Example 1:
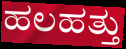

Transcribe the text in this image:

ಹಲಹತ್ತು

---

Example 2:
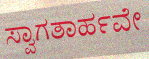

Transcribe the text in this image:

ಸ್ವಾಗತಾರ್ಹವೇ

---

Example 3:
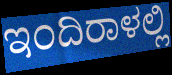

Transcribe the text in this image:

ಇಂದಿರಾಳಲ್ಲಿ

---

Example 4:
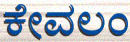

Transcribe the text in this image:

ಕೇವಲಂ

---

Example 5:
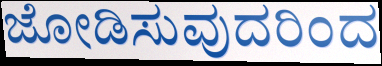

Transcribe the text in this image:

ಜೋಡಿಸುವುದರಿಂದ